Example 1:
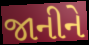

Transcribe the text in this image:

જાનીને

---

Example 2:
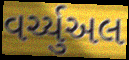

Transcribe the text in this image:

વર્ચ્યુઅલ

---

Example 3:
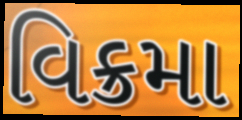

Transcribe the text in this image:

વિક્રમા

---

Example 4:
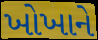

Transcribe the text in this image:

ખોખાને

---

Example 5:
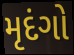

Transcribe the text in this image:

મૃદંગો